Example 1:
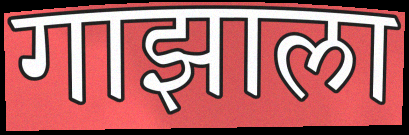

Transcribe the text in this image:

गाझाला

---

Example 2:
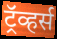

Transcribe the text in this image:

ट्रॅव्हर्स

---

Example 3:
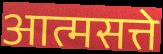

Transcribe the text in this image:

आत्मसत्ते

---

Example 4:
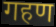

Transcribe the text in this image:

गहण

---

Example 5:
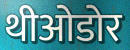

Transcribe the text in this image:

थीओडोर